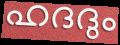
ഹദദും